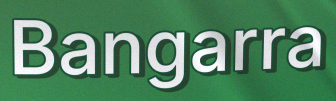
Bangarra